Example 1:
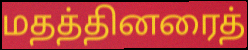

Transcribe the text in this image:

மதத்தினரைத்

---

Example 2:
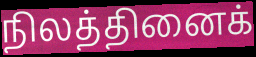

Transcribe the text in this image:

நிலத்தினைக்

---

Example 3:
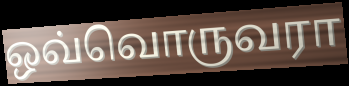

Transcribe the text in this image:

ஒவ்வொருவரா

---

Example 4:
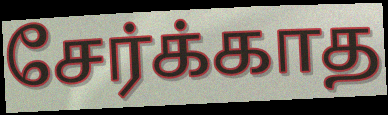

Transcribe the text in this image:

சேர்க்காத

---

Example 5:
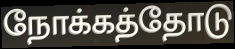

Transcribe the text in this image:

நோக்கத்தோடு